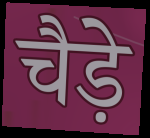
चैड़े